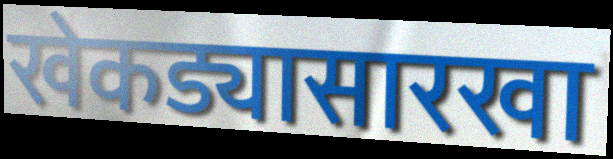
खेकड्यासारखा